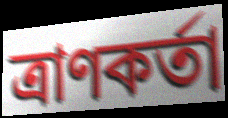
ত্ৰাণকৰ্তা